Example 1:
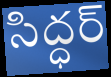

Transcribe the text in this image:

సిద్ధర్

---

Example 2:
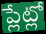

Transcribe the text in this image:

ప్లేట్లో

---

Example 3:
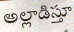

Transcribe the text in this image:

అల్లాడిస్తూ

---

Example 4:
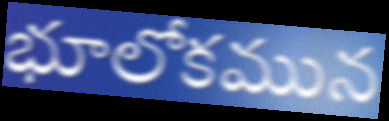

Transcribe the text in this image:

భూలోకమున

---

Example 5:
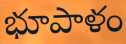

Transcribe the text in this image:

భూపాళం